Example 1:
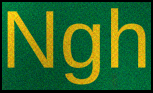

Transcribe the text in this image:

Ngh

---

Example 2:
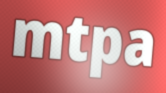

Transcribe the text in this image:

mtpa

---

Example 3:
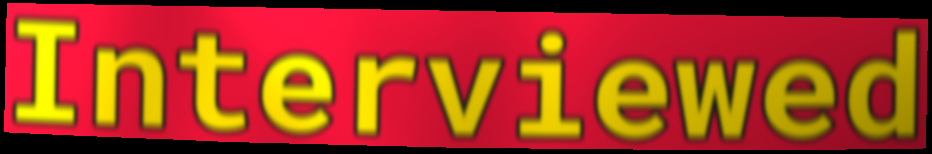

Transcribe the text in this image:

Interviewed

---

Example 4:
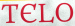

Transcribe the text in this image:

TELO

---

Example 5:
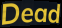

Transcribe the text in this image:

Dead